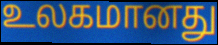
உலகமானது